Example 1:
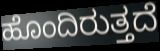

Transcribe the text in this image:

ಹೊಂದಿರುತ್ತದೆ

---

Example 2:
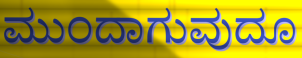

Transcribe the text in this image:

ಮುಂದಾಗುವುದೂ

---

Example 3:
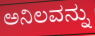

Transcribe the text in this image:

ಅನಿಲವನ್ನು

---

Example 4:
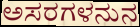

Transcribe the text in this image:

ಅಸರಗಳನುನ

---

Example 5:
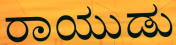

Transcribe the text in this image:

ರಾಯುಡು